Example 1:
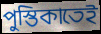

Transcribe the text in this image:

পুস্তিকাতেই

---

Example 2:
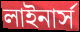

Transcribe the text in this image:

লাইনার্স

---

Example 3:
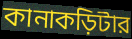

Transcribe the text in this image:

কানাকড়িটার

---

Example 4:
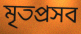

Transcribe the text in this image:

মৃতপ্রসব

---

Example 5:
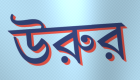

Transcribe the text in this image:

উরুর